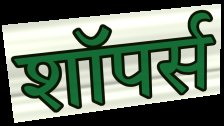
शॉपर्स